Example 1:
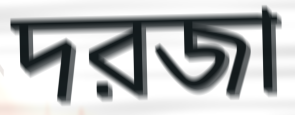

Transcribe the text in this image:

দরজা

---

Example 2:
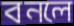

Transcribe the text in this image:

বনলে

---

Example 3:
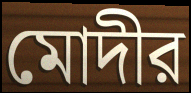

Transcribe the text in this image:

মোদীর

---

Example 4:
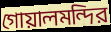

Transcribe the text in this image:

গোয়ালমন্দির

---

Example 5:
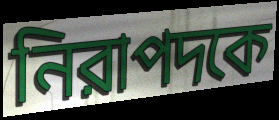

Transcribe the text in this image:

নিরাপদকে